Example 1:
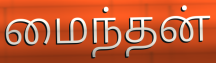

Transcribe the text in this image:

மைந்தன்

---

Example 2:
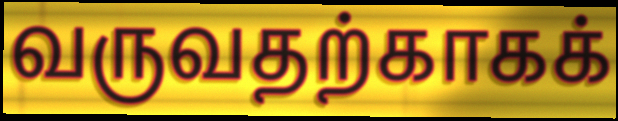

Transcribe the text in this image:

வருவதற்காகக்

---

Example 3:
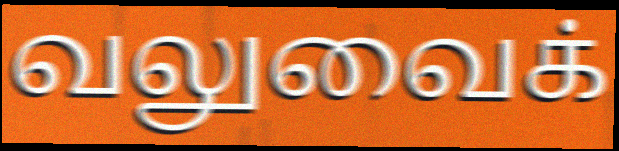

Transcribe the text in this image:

வலுவைக்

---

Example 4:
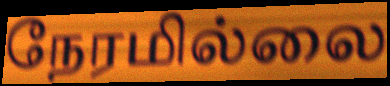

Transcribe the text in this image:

நேரமில்லை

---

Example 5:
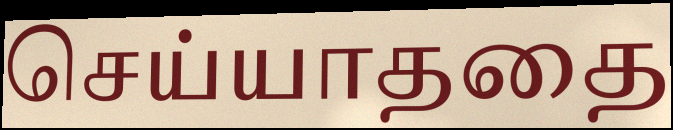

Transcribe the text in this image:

செய்யாததை